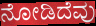
ನೋಡಿದೆವು